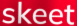
skeet